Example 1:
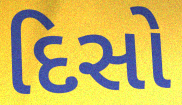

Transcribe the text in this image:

દિસો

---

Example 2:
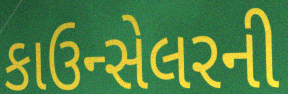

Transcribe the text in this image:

કાઉન્સેલરની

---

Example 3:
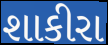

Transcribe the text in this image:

શાકીરા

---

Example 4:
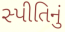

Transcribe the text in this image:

સ્પીતિનું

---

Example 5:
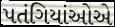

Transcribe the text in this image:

પતંગિયાંઓએ